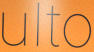
ulto